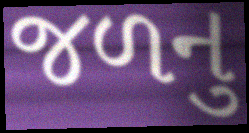
જળનુ